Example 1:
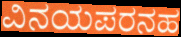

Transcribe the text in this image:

ವಿನಯಪರನಹ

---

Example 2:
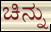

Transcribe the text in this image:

ಚಿನ್ನು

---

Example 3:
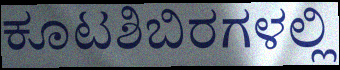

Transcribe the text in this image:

ಕೂಟಶಿಬಿರಗಳಲ್ಲಿ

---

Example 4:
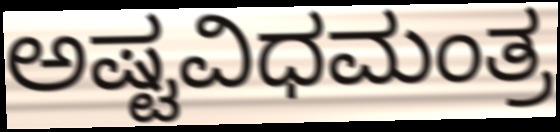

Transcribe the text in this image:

ಅಷ್ಟವಿಧಮಂತ್ರ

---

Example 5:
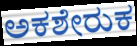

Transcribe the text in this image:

ಅಕಶೇರುಕ